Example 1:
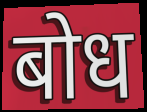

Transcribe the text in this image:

बोध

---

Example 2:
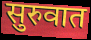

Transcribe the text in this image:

सुरुवात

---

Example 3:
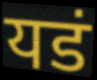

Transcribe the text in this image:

यडं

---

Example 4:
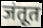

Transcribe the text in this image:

जंतूत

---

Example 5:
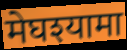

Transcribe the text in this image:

मेघश्यामा